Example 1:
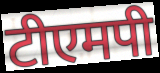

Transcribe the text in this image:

टीएमपी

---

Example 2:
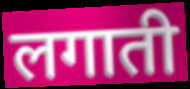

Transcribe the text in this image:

लगाती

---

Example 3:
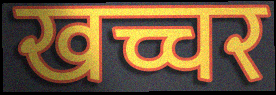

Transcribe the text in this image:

खच्चर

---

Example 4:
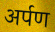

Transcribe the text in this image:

अर्पण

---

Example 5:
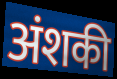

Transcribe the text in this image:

अंशकी